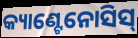
କ୍ୟାଣ୍ଟେନୋସିସ୍